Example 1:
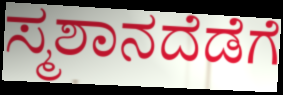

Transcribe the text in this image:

ಸ್ಮಶಾನದೆಡೆಗೆ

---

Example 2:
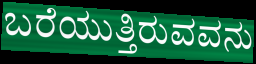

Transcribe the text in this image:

ಬರೆಯುತ್ತಿರುವವನು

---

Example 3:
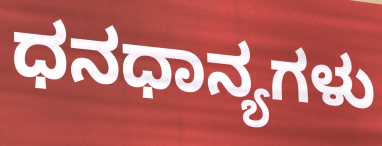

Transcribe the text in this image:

ಧನಧಾನ್ಯಗಳು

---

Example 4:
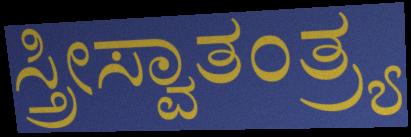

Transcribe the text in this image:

ಸ್ತ್ರೀಸ್ವಾತಂತ್ರ್ಯ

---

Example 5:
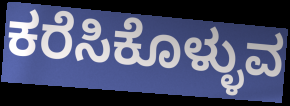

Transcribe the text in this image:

ಕರೆಸಿಕೊಳ್ಳುವ